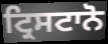
ਟ੍ਰਿਸਟਾਨੋ